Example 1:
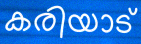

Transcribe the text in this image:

കരിയാട്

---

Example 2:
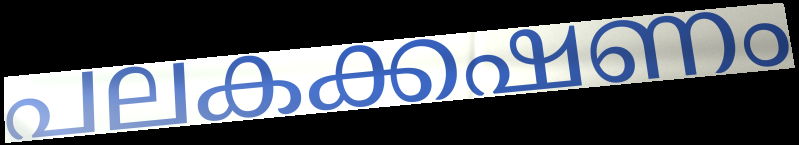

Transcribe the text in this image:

പലകക്കഷണം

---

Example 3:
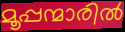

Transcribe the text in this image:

മൂപ്പന്മാരിൽ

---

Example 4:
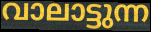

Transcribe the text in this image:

വാലാട്ടുന്ന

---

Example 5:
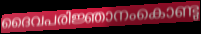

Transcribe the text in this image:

ദൈവപരിജ്ഞാനംകൊണ്ടു